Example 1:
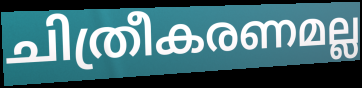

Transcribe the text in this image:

ചിത്രീകരണമല്ല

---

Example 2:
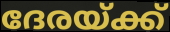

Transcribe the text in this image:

ദേരയ്ക്ക്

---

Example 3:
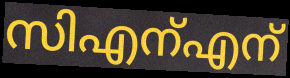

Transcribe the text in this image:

സിഎന്എന്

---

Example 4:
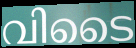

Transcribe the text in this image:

വിടൈ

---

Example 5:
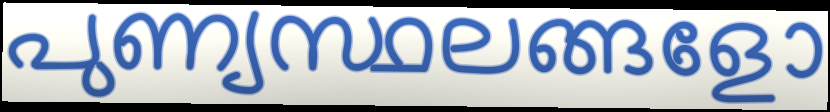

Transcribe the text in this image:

പുണ്യസ്ഥലങ്ങളോ